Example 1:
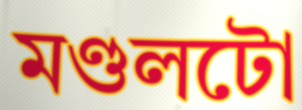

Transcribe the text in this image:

মণ্ডলটো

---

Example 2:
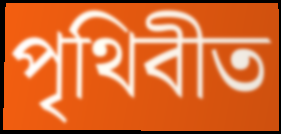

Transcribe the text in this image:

পৃথিবীত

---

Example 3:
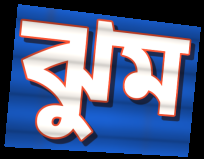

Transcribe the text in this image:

ঝুম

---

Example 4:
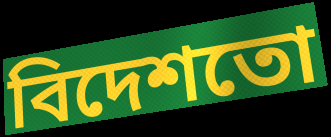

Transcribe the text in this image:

বিদেশতো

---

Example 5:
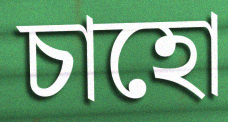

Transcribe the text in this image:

চাহো